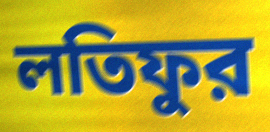
লতিফুর